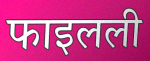
फाइलली